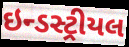
ઇન્ડસ્ટ્રીયલ